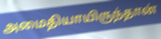
அமைதியாயிருந்தான்